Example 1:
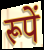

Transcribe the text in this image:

रूपें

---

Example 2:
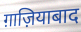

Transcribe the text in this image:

ग़ाज़ियाबाद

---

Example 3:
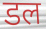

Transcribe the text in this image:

डल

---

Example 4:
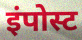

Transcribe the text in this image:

इंपोस्ट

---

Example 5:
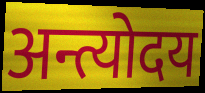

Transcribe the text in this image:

अन्त्योदय